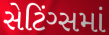
સેટિંગ્સમાં